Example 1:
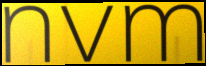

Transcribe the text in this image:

nvm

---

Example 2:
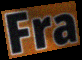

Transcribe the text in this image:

Fra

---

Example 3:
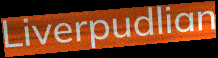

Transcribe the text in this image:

Liverpudlian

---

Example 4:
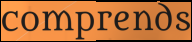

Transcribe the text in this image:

comprends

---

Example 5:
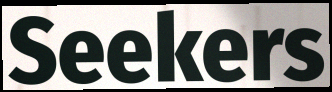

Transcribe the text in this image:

Seekers